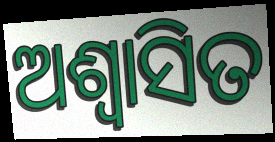
ଅଶ୍ୱାସିତ